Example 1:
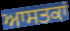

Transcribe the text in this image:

ਆਸਤਕਾਂ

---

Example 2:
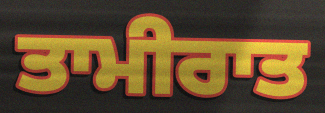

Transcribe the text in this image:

ਤਾਮੀਰਾਤ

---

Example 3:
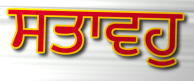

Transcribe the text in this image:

ਸਤਾਵਹੁ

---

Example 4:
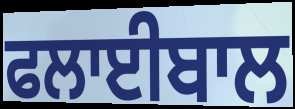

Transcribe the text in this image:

ਫਲਾਈਬਾਲ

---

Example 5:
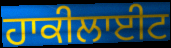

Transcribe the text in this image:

ਹਾਕੀਲਾਈਟ